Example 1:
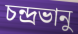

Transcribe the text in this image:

চন্দ্রভানু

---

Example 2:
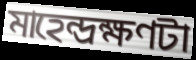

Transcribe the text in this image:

মাহেন্দ্রক্ষণটা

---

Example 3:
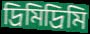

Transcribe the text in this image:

দ্রিমিদ্রিমি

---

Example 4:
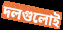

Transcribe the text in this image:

দলগুলোই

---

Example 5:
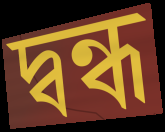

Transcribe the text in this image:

দ্বন্ধ